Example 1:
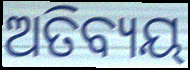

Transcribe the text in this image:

ଅତିବ୍ୟୟ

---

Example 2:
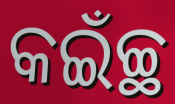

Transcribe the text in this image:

କଇଁଚ୍ଛ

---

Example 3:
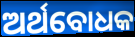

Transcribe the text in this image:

ଅର୍ଥବୋଧକ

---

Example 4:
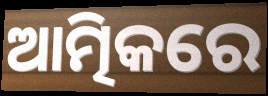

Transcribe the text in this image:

ଆତ୍ମିକରେ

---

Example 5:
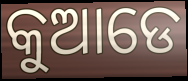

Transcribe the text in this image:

କୁଆଡେ